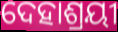
ଦେହାଶ୍ରୟୀ